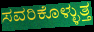
ಸವರಿಕೊಳ್ಳುತ್ತ